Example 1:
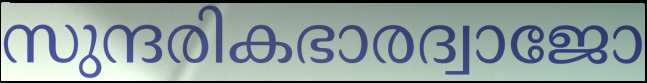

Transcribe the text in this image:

സുന്ദരികഭാരദ്വാജോ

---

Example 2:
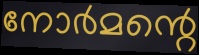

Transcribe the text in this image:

നോർമന്റെ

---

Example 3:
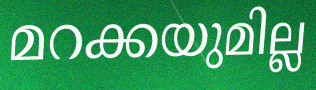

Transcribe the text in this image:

മറക്കയുമില്ല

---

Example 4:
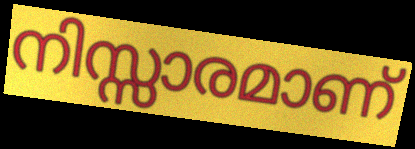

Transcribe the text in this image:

നിസ്സാരമാണ്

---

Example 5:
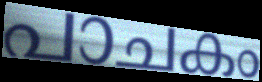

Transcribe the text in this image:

പാചകം